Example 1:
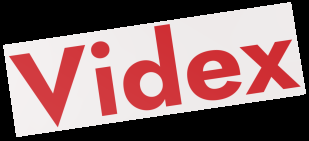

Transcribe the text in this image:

Videx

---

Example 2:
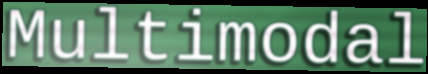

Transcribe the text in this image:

Multimodal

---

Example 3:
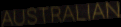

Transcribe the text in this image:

AUSTRALIAN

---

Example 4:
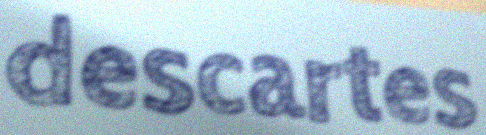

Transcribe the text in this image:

descartes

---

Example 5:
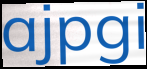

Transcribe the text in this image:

ajpgi